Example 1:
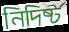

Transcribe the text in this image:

নিদিৰ্ষ্ট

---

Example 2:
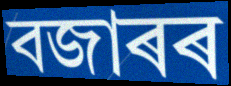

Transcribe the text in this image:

বজাৰৰ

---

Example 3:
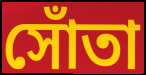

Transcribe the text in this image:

সোঁতা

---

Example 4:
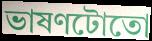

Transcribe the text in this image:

ভাষণটোতো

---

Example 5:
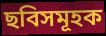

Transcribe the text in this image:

ছবিসমূহক